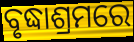
ବୃଦ୍ଧାଶ୍ରମରେ